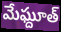
మేఘ్దూత్